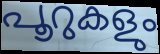
പൂറുകളും